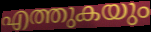
എത്തുകയും